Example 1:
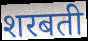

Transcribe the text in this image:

शरबती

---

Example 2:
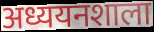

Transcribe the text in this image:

अध्ययनशाला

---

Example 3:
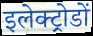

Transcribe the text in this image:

इलेक्ट्रोडों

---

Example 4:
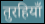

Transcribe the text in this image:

तुरहियाँ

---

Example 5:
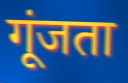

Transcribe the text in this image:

गूंजता